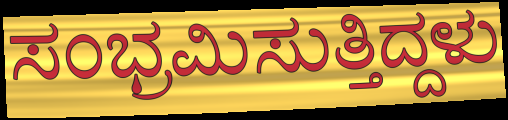
ಸಂಭ್ರಮಿಸುತ್ತಿದ್ದಳು